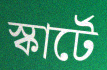
স্কার্টে